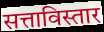
सत्ताविस्तार